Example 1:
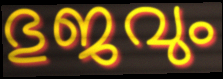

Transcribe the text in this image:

ഭുജവും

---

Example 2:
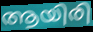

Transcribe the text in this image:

ആയിരി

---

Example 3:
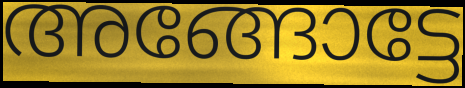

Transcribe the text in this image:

അങ്ങോട്ടേ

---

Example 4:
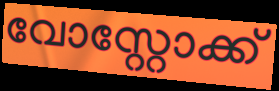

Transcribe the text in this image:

വോസ്റ്റോക്ക്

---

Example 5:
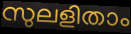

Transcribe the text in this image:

സുലളിതാം